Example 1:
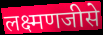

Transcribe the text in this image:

लक्ष्मणजीसे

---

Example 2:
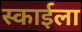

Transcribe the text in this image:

स्काईला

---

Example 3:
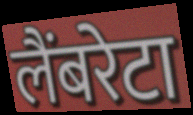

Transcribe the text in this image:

लैंबरेटा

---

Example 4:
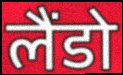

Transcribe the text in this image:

लैंडो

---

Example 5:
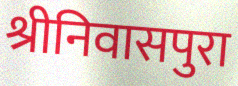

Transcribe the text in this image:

श्रीनिवासपुरा